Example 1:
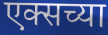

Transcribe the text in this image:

एक्सच्या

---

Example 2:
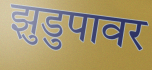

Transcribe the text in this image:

झुडुपावर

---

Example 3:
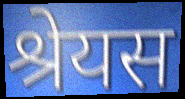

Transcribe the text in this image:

श्रेयस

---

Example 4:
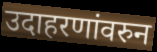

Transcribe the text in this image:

उदाहरणांवरुन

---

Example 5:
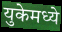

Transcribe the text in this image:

युकेमध्ये